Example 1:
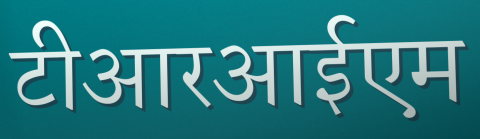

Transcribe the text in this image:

टीआरआईएम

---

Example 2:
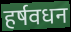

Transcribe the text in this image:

हर्षवधन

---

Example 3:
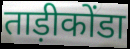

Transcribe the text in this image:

ताड़ीकोंडा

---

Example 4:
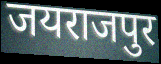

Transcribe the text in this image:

जयराजपुर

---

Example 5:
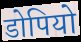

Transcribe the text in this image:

डोपियो